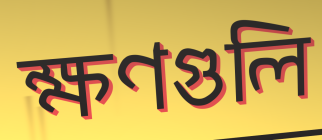
ক্ষণগুলি